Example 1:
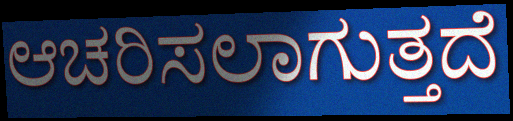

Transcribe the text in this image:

ಆಚರಿಸಲಾಗುತ್ತದೆ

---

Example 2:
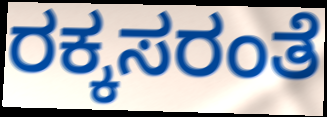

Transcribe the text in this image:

ರಕ್ಕಸರಂತೆ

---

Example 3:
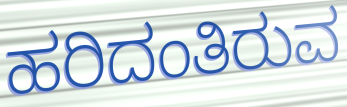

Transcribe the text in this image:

ಹರಿದಂತಿರುವ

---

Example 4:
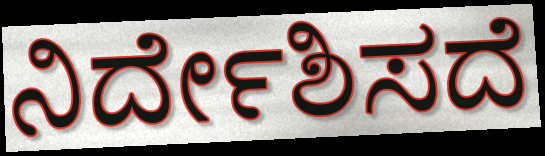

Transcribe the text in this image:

ನಿರ್ದೇಶಿಸದೆ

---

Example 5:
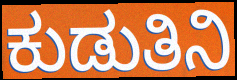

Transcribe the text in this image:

ಕುಡುತಿನಿ